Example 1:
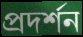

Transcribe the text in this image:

প্ৰদৰ্শন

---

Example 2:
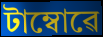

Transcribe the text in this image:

টাম্বোৱে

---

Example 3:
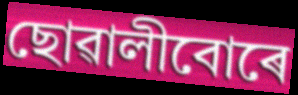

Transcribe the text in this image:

ছোৱালীবোৰে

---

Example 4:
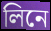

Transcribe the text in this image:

লিনে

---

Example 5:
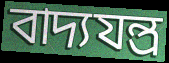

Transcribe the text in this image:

বাদ্যযন্ত্ৰ